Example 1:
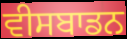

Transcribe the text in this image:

ਵੀਸਬਾਡਨ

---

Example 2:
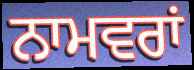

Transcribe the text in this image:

ਨਾਮਵਰਾਂ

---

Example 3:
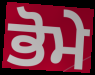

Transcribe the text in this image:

ਭੋਮੇ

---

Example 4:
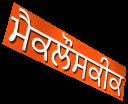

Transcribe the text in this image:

ਮੈਕਲੌਸਕੀਕ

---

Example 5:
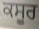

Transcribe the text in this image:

ਕਸੂਰ